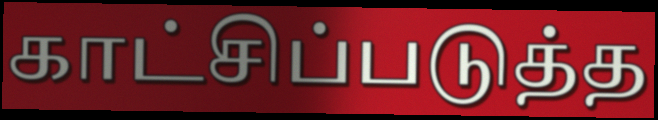
காட்சிப்படுத்த